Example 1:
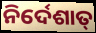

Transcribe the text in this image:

ନିର୍ଦେଶାତ୍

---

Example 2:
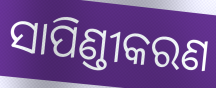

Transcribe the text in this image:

ସାପିଣ୍ଡୀକରଣ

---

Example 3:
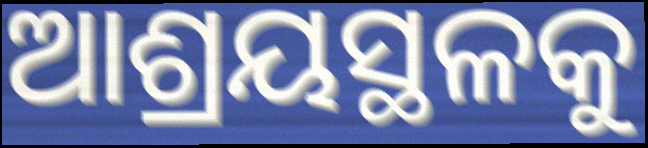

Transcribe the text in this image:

ଆଶ୍ରୟସ୍ଥଳକୁ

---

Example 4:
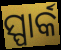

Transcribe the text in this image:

ସ୍ପାର୍କ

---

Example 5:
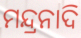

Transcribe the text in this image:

ମନ୍ଦ୍ରନାଦି